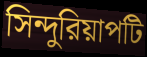
সিন্দুরিয়াপটি